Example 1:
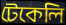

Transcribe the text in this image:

টেকেলি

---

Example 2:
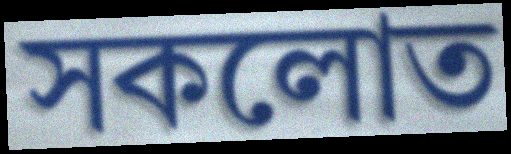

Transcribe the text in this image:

সকলোত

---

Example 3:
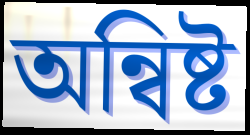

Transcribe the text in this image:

অন্বিষ্ট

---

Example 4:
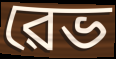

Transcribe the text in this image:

ৱেভ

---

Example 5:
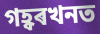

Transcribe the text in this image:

গহ্বৰখনত